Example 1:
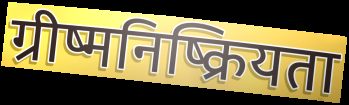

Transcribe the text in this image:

ग्रीष्मनिष्क्रियता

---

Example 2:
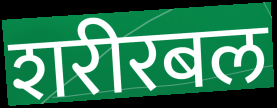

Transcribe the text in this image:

शरीरबल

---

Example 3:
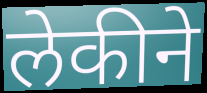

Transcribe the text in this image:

लेकीने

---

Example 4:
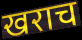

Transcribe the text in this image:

खराच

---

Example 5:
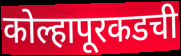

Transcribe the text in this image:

कोल्हापूरकडची